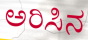
ಅರಿಸಿನ